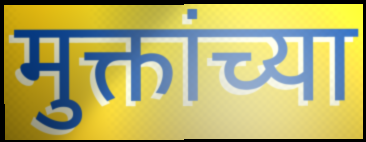
मुक्तांच्या